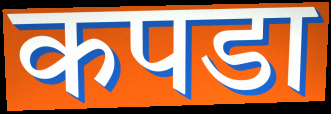
कपडा